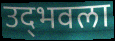
उद्भवला